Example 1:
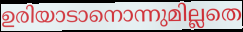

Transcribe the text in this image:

ഉരിയാടാനൊന്നുമില്ലതെ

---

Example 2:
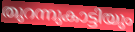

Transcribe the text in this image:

തുറന്നുകാട്ടിയും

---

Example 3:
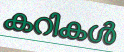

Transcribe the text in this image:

കറികൾ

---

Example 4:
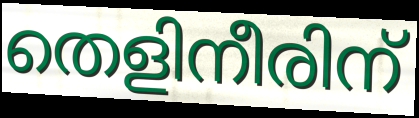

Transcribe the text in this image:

തെളിനീരിന്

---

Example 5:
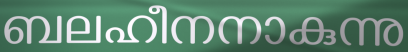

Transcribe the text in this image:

ബലഹീനനാകുന്നു